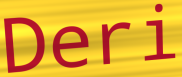
Deri